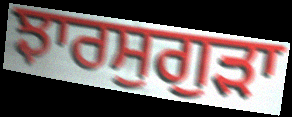
ਝਾਰਸੁਗੁੜਾ